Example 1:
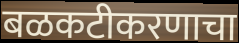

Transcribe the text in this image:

बळकटीकरणाचा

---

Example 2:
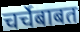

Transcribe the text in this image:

चर्चेबाबत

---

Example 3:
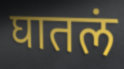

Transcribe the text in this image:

घातलं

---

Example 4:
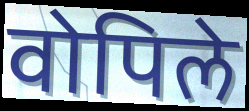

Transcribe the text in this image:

वोपिले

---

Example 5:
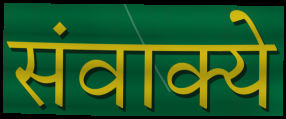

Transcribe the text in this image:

संवाक्ये